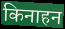
किनाहन